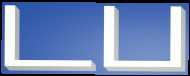
டப